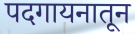
पदगायनातून